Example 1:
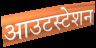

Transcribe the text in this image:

आउटस्टेशन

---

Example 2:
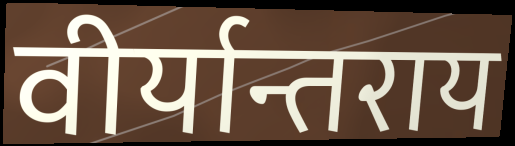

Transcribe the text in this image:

वीर्यान्तराय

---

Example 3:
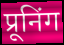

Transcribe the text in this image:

प्रूनिंग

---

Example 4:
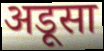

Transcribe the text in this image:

अडूसा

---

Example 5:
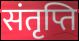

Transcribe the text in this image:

संतृप्ति